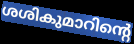
ശശികുമാറിന്റെ